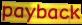
payback